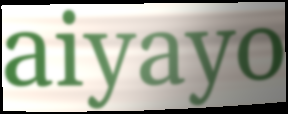
aiyayo